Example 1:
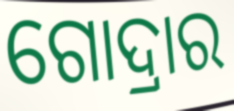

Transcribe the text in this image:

ଗୋଦ୍ରାର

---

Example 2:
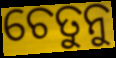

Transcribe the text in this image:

ଚେତୁନୁ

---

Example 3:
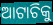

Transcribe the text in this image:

ଆଟାଚିକୁ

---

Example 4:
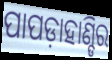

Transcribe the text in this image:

ପାପଡ଼ାହାଣ୍ଡିର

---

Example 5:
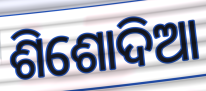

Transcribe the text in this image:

ଶିଶୋଦିଆ